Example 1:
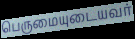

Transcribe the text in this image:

பெருமையுடையவர்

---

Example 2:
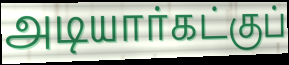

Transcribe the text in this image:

அடியார்கட்குப்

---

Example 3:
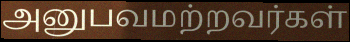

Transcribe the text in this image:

அனுபவமற்றவர்கள்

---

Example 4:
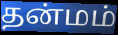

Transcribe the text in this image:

தன்மம்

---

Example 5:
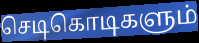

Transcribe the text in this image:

செடிகொடிகளும்